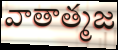
వాతాత్మజ